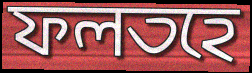
ফলতহে